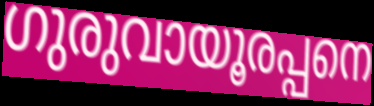
ഗുരുവായൂരപ്പനെ